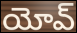
యోవ్